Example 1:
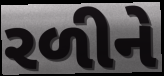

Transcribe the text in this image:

રળીને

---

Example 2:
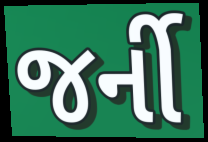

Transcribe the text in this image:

જર્ની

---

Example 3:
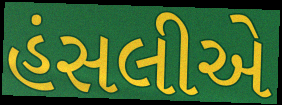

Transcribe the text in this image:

હંસલીએ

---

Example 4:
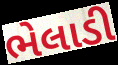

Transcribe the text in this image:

ભેલાડી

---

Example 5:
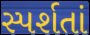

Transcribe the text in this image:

સ્પર્શતાં